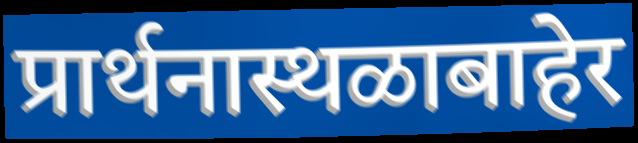
प्रार्थनास्थळाबाहेर